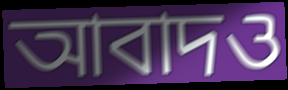
আবাদও